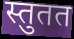
स्तुतत